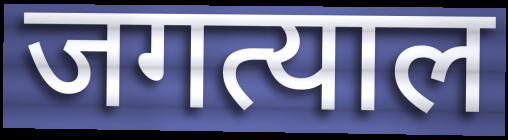
जगत्याल